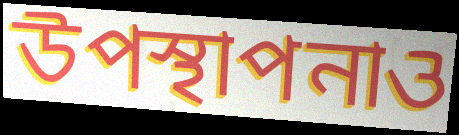
উপস্থাপনাও